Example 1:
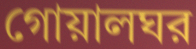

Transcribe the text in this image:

গোয়ালঘর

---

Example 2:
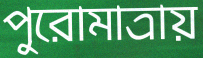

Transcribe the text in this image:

পুরোমাত্রায়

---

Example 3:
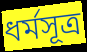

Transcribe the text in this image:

ধর্মসূত্র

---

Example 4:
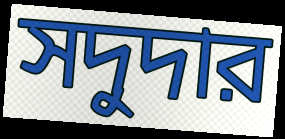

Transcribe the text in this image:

সদুদার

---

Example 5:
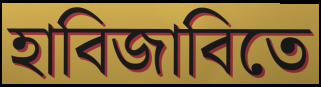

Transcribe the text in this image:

হাবিজাবিতে